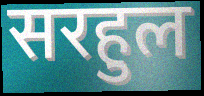
सरहुल